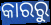
କାରରୁ